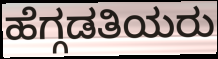
ಹೆಗ್ಗಡತಿಯರು